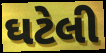
ઘટેલી